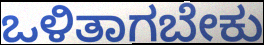
ಒಳಿತಾಗಬೇಕು